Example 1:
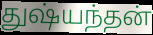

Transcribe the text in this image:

துஷ்யந்தன்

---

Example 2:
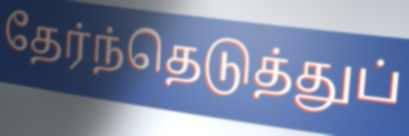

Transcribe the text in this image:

தேர்ந்தெடுத்துப்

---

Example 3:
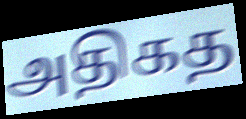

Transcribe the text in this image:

அதிகத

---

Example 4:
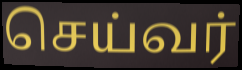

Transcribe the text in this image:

செய்வர்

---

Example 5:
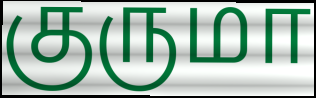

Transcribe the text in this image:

குருமா